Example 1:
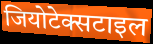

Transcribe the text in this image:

जियोटेक्सटाइल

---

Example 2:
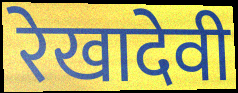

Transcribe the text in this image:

रेखादेवी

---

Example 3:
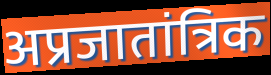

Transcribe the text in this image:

अप्रजातांत्रिक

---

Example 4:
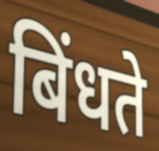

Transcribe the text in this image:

बिंधते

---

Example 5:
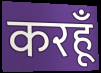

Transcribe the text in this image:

करहूँ